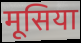
मूसिया